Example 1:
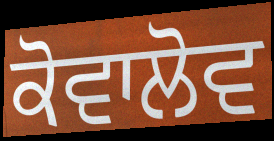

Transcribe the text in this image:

ਕੋਵਾਲੋਵ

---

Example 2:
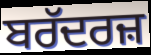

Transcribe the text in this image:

ਬਰੱਦਰਜ਼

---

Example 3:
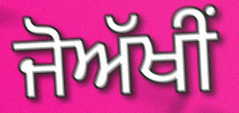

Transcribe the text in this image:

ਜੋਅੱਖੀਂ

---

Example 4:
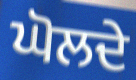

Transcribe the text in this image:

ਘੋਲਦੇ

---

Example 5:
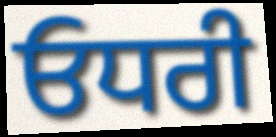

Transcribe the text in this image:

ਓਧਰੀ